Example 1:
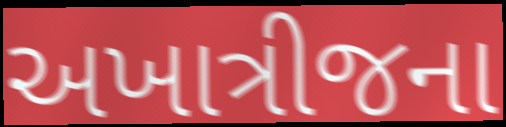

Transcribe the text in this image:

અખાત્રીજના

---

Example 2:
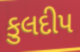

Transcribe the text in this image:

કુલદીપ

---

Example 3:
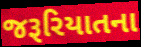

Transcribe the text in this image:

જરૂરિયાતના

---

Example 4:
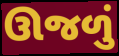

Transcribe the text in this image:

ઊજળું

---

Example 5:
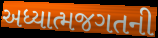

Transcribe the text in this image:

અધ્યાત્મજગતની